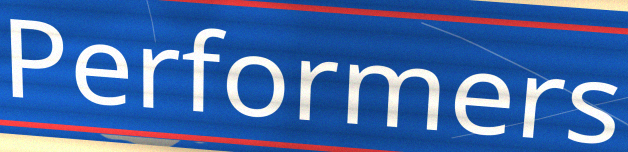
Performers